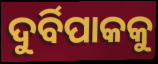
ଦୁର୍ବିପାକକୁ